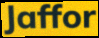
Jaffor